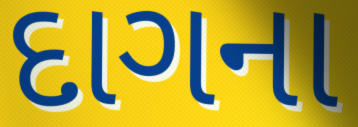
દાગના